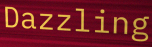
Dazzling